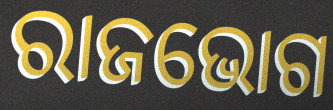
ରାଜଭୋଗ